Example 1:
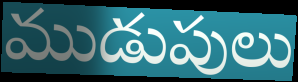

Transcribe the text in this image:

ముడుపులు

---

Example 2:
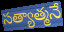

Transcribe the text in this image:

సత్యాత్మనే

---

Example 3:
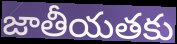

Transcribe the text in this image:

జాతీయతకు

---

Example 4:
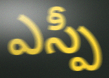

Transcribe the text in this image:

ఎస్పీ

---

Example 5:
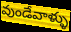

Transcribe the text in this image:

వుండేవాళ్ళు